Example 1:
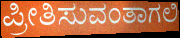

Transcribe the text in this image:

ಪ್ರೀತಿಸುವಂತಾಗಲಿ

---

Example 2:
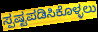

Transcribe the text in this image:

ಸ್ಪಷ್ಟಪಡಿಸಿಕೊಳ್ಳಲು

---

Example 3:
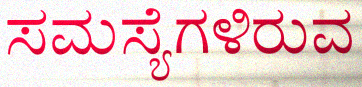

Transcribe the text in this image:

ಸಮಸ್ಯೆಗಳಿರುವ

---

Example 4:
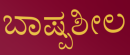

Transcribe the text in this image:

ಬಾಷ್ಪಶೀಲ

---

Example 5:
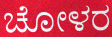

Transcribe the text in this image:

ಚೋಳರ